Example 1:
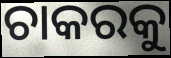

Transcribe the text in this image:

ଚାକରକୁ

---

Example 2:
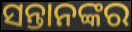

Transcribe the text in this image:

ସନ୍ତାନଙ୍କର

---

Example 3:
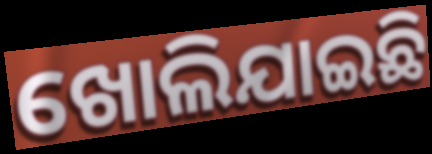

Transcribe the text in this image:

ଖୋଲିଯାଇଛି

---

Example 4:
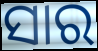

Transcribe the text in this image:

ସାର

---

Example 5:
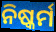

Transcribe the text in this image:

ନିଷ୍କର୍ମ